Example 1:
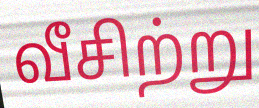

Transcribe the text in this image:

வீசிற்று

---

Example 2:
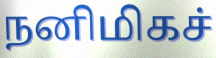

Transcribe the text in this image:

நனிமிகச்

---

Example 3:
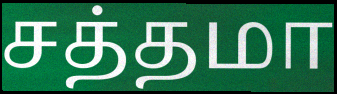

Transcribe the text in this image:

சத்தமா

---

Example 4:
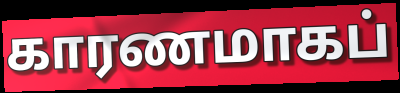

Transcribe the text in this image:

காரணமாகப்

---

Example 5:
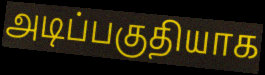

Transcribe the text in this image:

அடிப்பகுதியாக